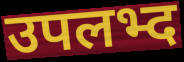
उपलभ्द